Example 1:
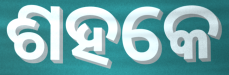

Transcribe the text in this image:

ଶହକେ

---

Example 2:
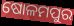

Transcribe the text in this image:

ଷୋଳମପୁର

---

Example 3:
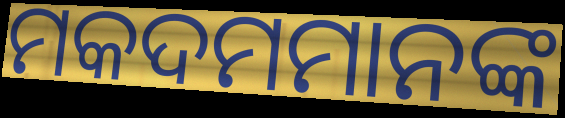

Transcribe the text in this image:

ମକଦମମାନଙ୍କ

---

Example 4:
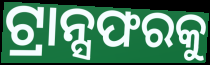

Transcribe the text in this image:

ଟ୍ରାନ୍ସଫରକୁ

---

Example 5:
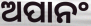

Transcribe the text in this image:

ଅପାନଂ